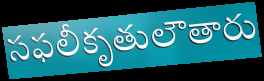
సఫలీకృతులౌతారు